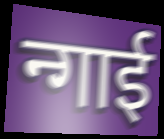
न्गाई